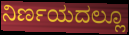
ನಿರ್ಣಯದಲ್ಲೂ